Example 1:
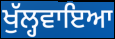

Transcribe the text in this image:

ਖੁੱਲ੍ਹਵਾਇਆ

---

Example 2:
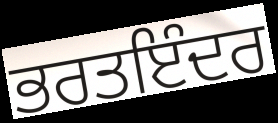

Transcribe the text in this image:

ਭਰਤਇੰਦਰ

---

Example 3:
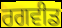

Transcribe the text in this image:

ਰਗਵੀਡ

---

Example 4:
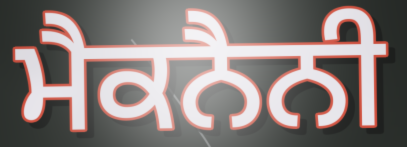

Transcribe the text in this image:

ਮੈਕਨੈਨੀ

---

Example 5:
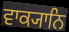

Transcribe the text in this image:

ਵਾਕ੍ਯਾਨਿ